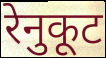
रेनुकूट